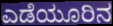
ಎಡೆಯೂರಿನ